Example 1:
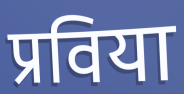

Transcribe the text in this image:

प्रविया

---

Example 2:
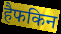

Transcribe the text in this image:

हैफकिन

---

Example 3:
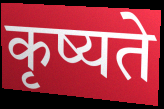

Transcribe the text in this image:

कृष्यते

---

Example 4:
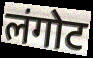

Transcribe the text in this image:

लंगोट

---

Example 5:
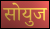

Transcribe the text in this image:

सोयुज